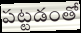
పట్టడంతో